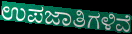
ಉಪಜಾತಿಗಳಿವೆ